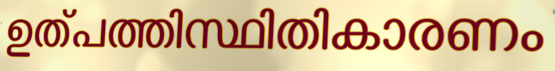
ഉത്പത്തിസ്ഥിതികാരണം